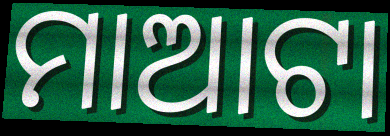
ମାଆଟା